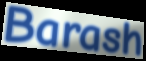
Barash